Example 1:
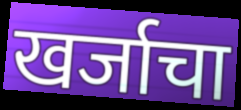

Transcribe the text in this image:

खर्जाचा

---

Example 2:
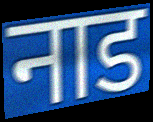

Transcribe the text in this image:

नाड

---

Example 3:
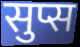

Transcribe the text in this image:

सुप्स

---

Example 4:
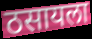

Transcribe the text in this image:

ठसायला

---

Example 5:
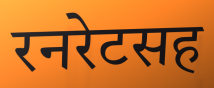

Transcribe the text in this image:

रनरेटसह